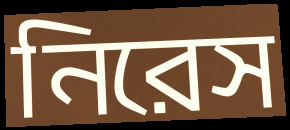
নিরেস